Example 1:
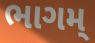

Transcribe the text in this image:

ભાગમ્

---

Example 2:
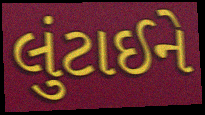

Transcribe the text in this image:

લુંટાઈને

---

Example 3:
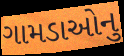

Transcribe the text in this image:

ગામડાઓનુ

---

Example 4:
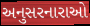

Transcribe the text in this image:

અનુસરનારાઓ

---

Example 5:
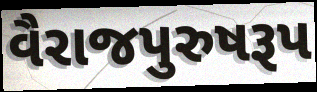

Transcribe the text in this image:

વૈરાજપુરુષરૂપ